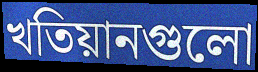
খতিয়ানগুলো